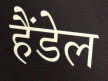
हैंडेल